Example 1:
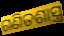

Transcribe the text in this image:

ଗଣିତଶାସ୍ତ୍ର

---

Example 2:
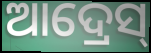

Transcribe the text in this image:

ଆଦ୍ରେସ୍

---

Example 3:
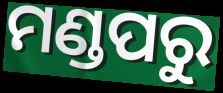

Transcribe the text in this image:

ମଣ୍ଡପରୁ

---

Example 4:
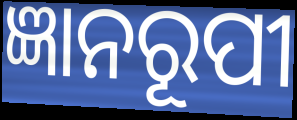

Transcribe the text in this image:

ଜ୍ଞାନରୂପୀ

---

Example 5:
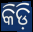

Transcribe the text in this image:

କିଡ଼ି